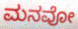
ಮನವೋ